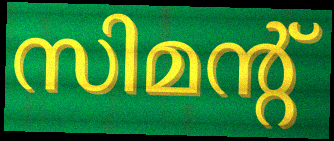
സിമന്റ്